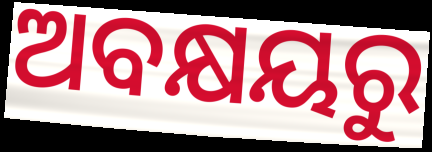
ଅବକ୍ଷୟରୁ